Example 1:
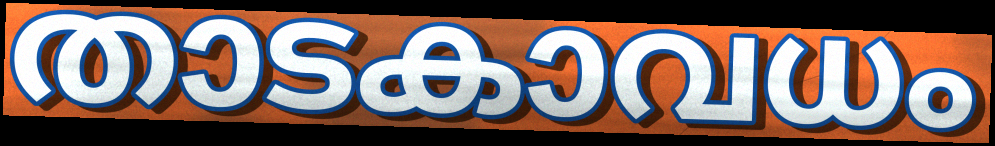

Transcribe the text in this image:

താടകാവധം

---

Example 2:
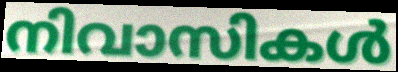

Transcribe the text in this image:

നിവാസികൾ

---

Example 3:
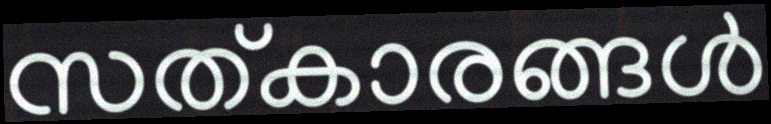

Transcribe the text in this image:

സത്കാരങ്ങൾ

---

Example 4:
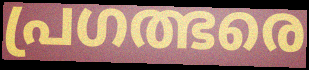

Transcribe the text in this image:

പ്രഗത്ഭരെ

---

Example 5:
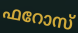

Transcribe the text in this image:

ഫറോസ്